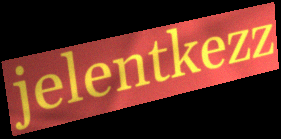
jelentkezz